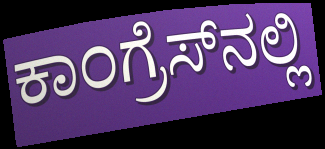
ಕಾಂಗ್ರೆಸ್‌ನಲ್ಲಿ